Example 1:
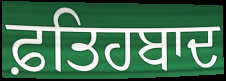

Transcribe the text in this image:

ਫ਼ਤਿਹਬਾਦ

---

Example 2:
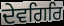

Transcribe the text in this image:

ਦੇਵਗਿਰਿ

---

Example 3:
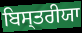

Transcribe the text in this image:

ਬਿਸ੍ਤਰੀਯਾ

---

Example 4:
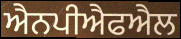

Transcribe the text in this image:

ਐਨਪੀਐਫਐਲ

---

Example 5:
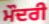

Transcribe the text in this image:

ਮੌਦਰੀ